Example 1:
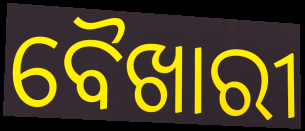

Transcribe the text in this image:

ବୈଖାରୀ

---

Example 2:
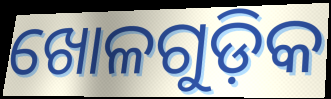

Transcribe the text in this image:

ଖୋଳଗୁଡ଼ିକ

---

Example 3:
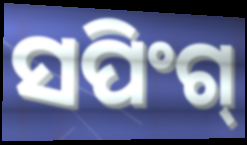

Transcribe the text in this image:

ସପିଂଗ୍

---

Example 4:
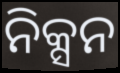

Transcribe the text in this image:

ନିକ୍ସନ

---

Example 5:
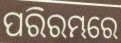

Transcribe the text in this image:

ପରିରମ୍ଭରେ